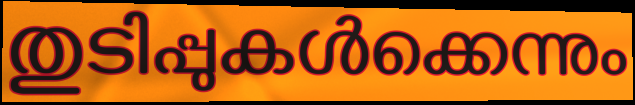
തുടിപ്പുകൾക്കെന്നും